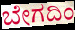
ಬೇಗದಿಂ